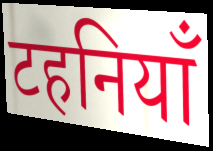
टहनियाँ